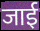
जाई